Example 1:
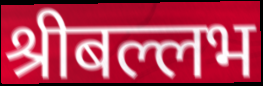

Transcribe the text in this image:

श्रीबल्लभ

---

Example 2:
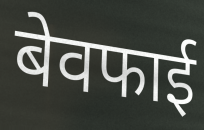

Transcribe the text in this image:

बेवफाई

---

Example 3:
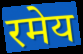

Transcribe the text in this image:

रमेय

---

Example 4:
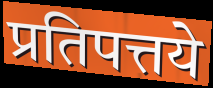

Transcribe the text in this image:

प्रतिपत्तये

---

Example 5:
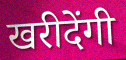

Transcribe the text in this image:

खरीदेंगी